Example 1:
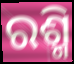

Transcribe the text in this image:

ରଶ୍ମି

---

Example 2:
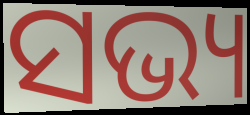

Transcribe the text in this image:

ସଭ୍ୟ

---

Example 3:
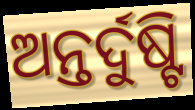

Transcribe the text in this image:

ଅନ୍ତର୍ଦୁଷ୍ଟି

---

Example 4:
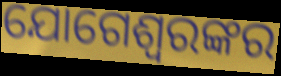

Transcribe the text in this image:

ଯୋଗେଶ୍ଵରଙ୍କର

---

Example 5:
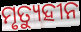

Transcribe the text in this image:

ମୃତ୍ୟୁହୀନ